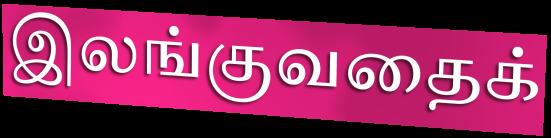
இலங்குவதைக்